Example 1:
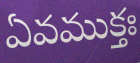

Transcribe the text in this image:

ఏవముక్తః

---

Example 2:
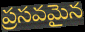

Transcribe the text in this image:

ప్రసవమైన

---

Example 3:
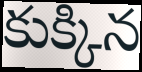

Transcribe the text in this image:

కుక్కిన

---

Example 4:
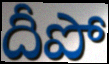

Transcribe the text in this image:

దీపో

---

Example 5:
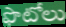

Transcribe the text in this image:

ఫొటోలు